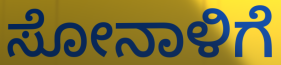
ಸೋನಾಳಿಗೆ